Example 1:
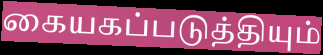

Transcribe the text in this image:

கையகப்படுத்தியும்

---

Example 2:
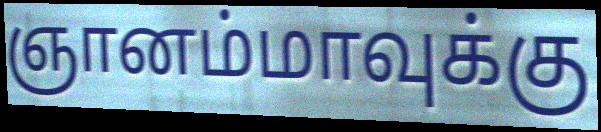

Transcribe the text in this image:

ஞானம்மாவுக்கு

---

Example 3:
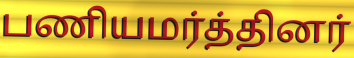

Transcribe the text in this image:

பணியமர்த்தினர்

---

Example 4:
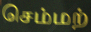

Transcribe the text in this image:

செம்மற்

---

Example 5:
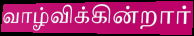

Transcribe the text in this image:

வாழ்விக்கின்றார்